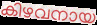
കിഴവനായ